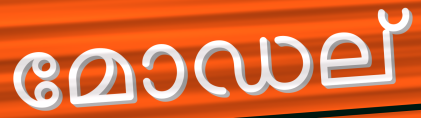
മോഡല്